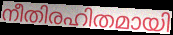
നീതിരഹിതമായി